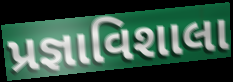
પ્રજ્ઞાવિશાલા